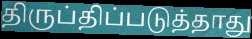
திருப்திப்படுத்தாது